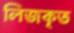
লিজকৃত